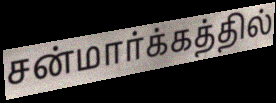
சன்மார்க்கத்தில்